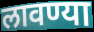
लावण्या